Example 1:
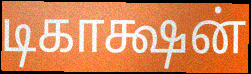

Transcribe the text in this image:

டிகாக்ஷன்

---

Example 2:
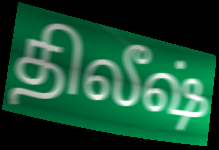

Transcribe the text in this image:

திலீஷ்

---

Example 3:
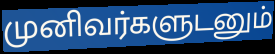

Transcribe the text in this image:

முனிவர்களுடனும்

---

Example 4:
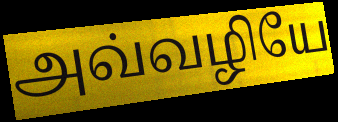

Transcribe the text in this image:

அவ்வழியே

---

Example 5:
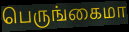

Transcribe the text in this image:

பெருங்கைமா